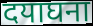
दयाघना